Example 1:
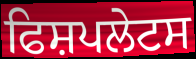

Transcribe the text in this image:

ਫਿਸ਼ਪਲੇਟਸ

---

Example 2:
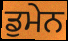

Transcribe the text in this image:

ਡੁਮੇਨ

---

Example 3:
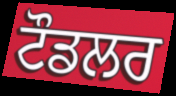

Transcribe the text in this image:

ਟੌਡਲਰ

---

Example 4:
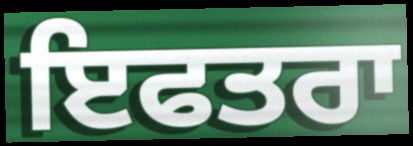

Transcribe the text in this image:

ਇਫਤਰਾ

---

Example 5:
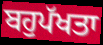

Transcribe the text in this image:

ਬਹੁਪੱਖਤਾ